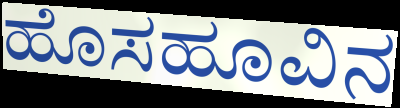
ಹೊಸಹೂವಿನ